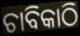
ଚାବିକାଠି